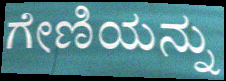
ಗೇಣಿಯನ್ನು